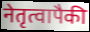
नेतृत्वापैकी